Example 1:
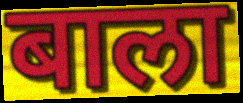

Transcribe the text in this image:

बाला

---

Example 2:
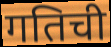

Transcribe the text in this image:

गतिची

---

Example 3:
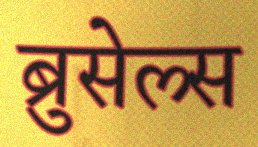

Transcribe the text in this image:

ब्रुसेल्स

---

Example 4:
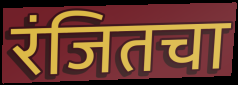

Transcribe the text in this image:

रंजितचा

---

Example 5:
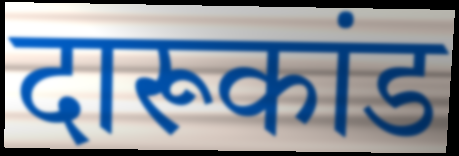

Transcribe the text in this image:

दारूकांड